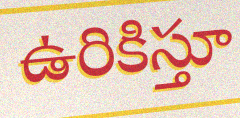
ఉరికిస్తూ